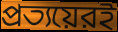
প্রত্যয়েরই